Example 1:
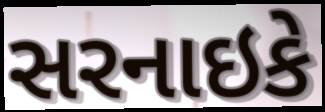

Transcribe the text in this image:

સરનાઇકે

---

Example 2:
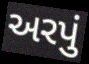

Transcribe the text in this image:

અરપું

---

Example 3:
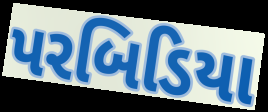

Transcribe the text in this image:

પરબિડિયા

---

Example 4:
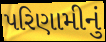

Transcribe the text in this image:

પરિણામીનું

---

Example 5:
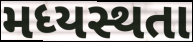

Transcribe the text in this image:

મધ્યસ્થતા